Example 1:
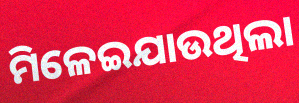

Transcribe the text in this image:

ମିଳେଇଯାଉଥିଲା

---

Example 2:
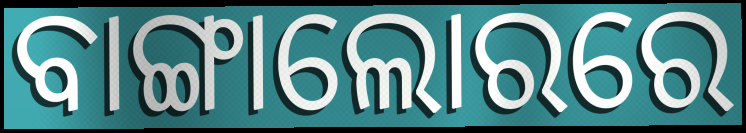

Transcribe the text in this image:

ବାଙ୍ଗାଲୋରରେ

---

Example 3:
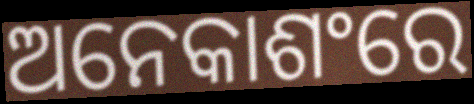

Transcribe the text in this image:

ଅନେକାଶଂରେ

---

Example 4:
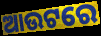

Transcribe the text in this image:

ଆଉଟରେ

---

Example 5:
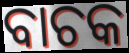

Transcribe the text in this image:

ବାଚକ